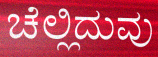
ಚೆಲ್ಲಿದುವು